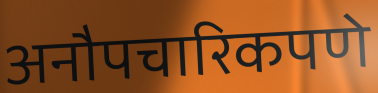
अनौपचारिकपणे